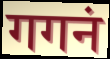
गगनं